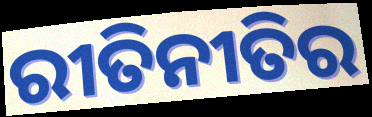
ରୀତିନୀତିର